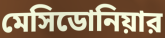
মেসিডোনিয়ার